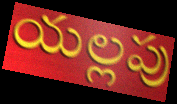
యల్లపు